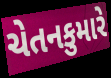
ચેતનકુમારે